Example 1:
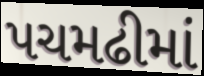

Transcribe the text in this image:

પચમઢીમાં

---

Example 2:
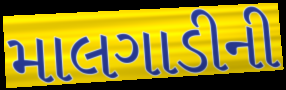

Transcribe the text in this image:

માલગાડીની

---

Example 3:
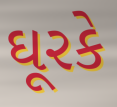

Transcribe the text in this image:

ઘૂરકે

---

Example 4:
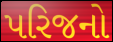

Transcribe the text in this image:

પરિજનો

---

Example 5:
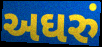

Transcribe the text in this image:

અઘરું